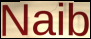
Naib